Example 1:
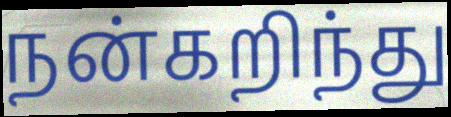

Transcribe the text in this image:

நன்கறிந்து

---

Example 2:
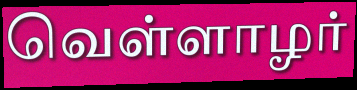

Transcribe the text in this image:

வெள்ளாழர்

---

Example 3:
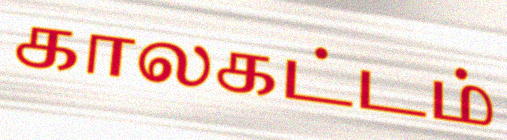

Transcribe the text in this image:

காலகட்டம்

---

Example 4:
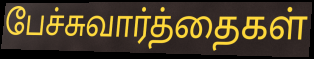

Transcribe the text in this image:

பேச்சுவார்த்தைகள்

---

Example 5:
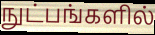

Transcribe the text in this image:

நுட்பங்களில்